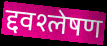
द्दवश्लेषण